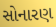
સોનારણ